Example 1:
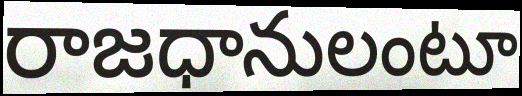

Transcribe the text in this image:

రాజధానులంటూ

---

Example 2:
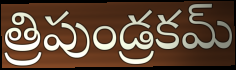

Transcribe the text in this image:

త్రిపుండ్రకమ్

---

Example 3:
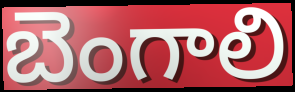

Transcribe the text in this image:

బెంగాలి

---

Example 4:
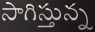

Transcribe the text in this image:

సాగిస్తున్న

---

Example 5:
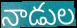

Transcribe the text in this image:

నాడుల